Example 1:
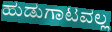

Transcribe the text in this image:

ಹುಡುಗಾಟವಲ್ಲ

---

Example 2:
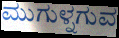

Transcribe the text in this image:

ಮುಗುಳ್ನಗುವ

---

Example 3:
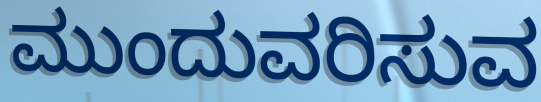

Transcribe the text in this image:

ಮುಂದುವರಿಸುವ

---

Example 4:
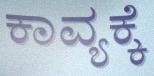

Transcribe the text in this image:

ಕಾವ್ಯಕ್ಕೆ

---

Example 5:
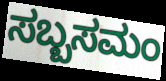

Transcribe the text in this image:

ಸಬ್ಬಸಮಂ